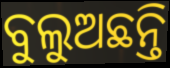
ବୁଲୁଅଛନ୍ତି